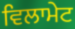
ਵਿਲਾਮੇਟ